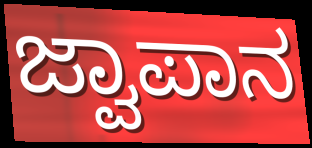
ಜ್ವಾಪಾನ